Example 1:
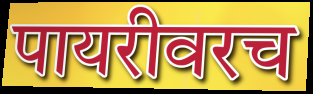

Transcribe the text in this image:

पायरीवरच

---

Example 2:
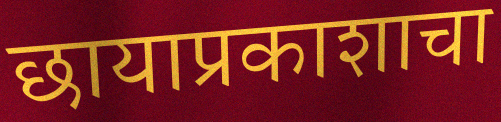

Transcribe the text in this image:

छायाप्रकाशाचा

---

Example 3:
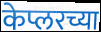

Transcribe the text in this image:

केप्लरच्या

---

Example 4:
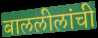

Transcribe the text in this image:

बाललीलांची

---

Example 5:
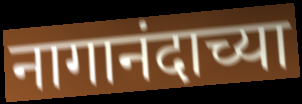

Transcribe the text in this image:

नागानंदाच्या